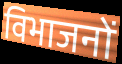
विभाजनों